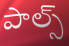
పాల్స్